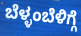
ಬೆಳ್ಳಂಬೆಳಿಗ್ಗೆ